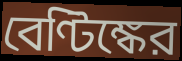
বেণ্টিঙ্কের